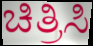
ಚಿತ್ರಿಸಿ